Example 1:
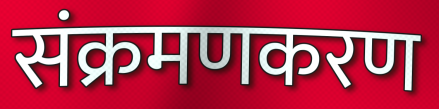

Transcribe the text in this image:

संक्रमणकरण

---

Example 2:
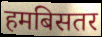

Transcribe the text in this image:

हमबिसतर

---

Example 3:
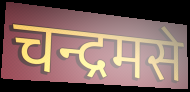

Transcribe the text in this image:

चन्द्रमसे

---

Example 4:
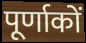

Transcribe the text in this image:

पूर्णाकों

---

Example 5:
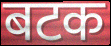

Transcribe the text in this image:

बटक